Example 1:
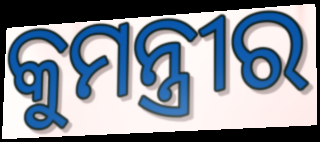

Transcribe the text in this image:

କୁମନ୍ତ୍ରୀର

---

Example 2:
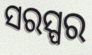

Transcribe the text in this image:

ସରସ୍ପର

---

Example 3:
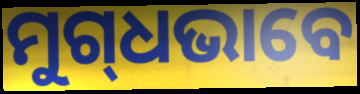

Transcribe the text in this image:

ମୁଗ୍‌ଧଭାବେ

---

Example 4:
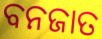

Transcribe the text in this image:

ବନଜାତ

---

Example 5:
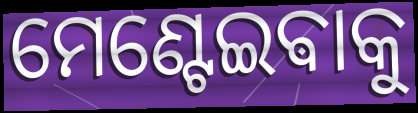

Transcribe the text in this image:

ମେଣ୍ଟେଇଵାକୁ